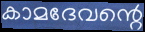
കാമദേവന്റെ